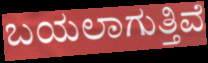
ಬಯಲಾಗುತ್ತಿವೆ